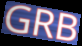
GRB